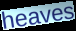
heaves